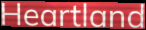
Heartland